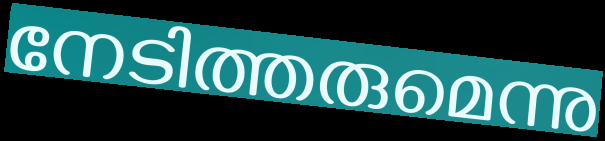
നേടിത്തരുമെന്നു